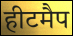
हीटमैप